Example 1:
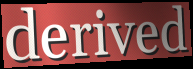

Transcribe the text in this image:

derived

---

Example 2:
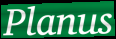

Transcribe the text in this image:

Planus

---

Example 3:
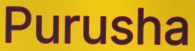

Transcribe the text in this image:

Purusha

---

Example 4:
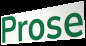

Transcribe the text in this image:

Prose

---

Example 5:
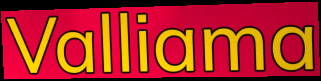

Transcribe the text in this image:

Valliama